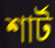
শার্ট